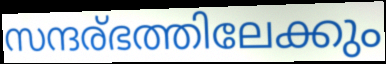
സന്ദര്ഭത്തിലേക്കും